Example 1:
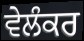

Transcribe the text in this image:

ਵੇਲੰਕਰ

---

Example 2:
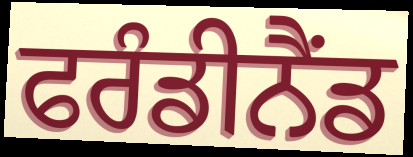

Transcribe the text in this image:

ਫਰੰਡੀਨੈਂਡ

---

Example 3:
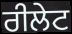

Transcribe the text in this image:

ਰੀਲੇਟ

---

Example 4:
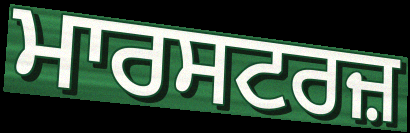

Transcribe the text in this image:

ਮਾਰਸਟਰਜ਼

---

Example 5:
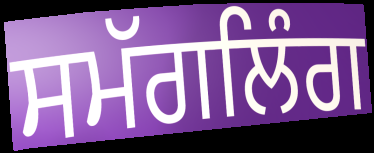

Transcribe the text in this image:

ਸਮੱਗਲਿੰਗ